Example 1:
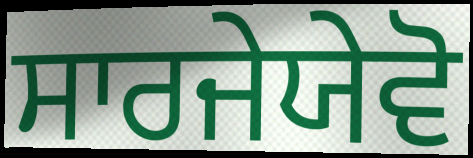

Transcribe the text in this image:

ਸਾਰਜੇਯੇਵੋ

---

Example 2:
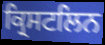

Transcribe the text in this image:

ਕ੍ਰਿਸਟਲਿਨ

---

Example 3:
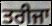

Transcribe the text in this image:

ਤਰੀਜਾ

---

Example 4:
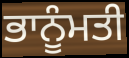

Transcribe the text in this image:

ਭਾਨੂੰਮਤੀ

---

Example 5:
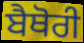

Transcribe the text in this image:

ਬੈਥੋਰੀ